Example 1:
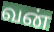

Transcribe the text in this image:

வன்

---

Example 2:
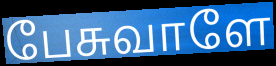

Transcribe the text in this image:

பேசுவாளே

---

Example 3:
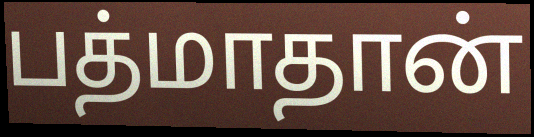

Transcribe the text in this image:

பத்மாதான்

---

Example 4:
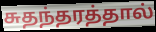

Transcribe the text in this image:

சுதந்தரத்தால்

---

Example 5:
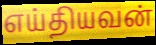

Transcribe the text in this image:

எய்தியவன்